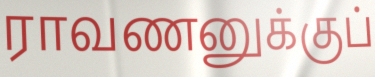
ராவணனுக்குப்